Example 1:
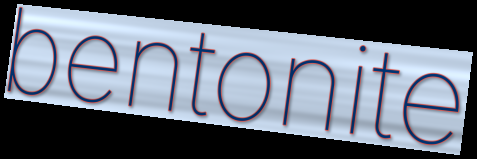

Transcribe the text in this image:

bentonite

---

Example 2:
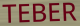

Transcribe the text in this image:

TEBER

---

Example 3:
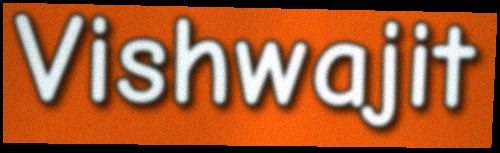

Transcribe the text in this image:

Vishwajit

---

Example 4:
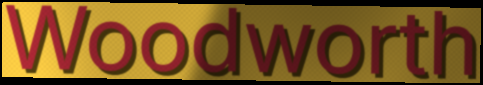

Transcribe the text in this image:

Woodworth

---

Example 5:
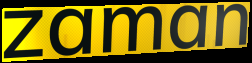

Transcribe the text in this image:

zaman